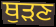
ਥੁੜਣ